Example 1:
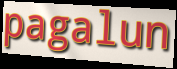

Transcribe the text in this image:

pagalun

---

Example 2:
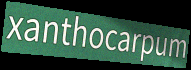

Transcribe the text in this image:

xanthocarpum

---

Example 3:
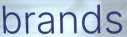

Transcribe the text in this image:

brands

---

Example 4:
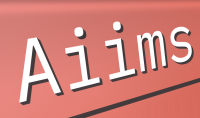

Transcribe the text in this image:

Aiims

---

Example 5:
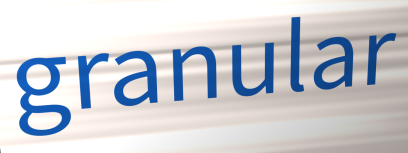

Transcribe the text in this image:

granular